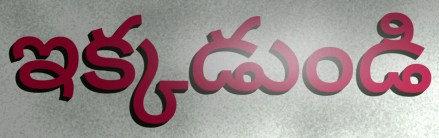
ఇక్కడుండి